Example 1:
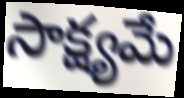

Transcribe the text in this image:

సాక్ష్యమే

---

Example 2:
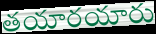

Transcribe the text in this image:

తయారయారు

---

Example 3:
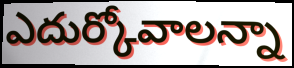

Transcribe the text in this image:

ఎదుర్కోవాలన్నా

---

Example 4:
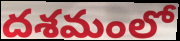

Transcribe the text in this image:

దశమంలో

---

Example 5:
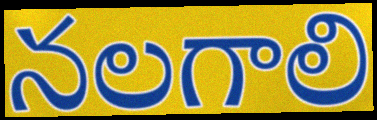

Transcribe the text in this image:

నలగాలి